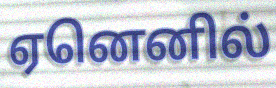
ஏனெனில்